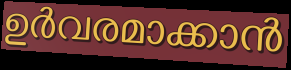
ഉർവരമാക്കാൻ